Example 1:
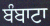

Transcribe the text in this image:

ਬੰਬਾਟਾ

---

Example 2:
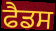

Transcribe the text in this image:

ਫੈਡਸ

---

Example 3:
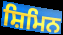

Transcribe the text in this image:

ਸ਼ਿਮਿਨ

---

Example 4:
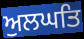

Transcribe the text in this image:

ਅੁਲਘਤਿ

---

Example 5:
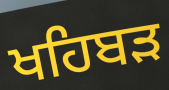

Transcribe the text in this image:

ਖਹਿਬੜ